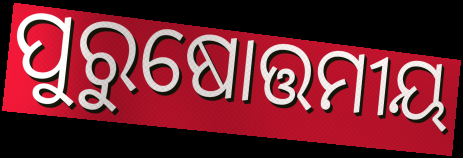
ପୁରୁଷୋତ୍ତମୀୟ